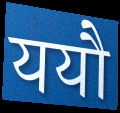
ययौ